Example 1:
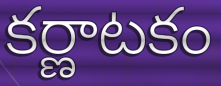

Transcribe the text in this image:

కర్ణాటకం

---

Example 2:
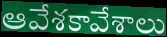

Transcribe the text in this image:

ఆవేశకావేశాలు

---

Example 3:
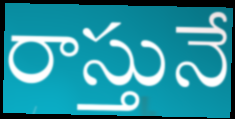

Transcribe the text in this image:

రాస్తునే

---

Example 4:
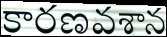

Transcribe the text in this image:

కారణవశాన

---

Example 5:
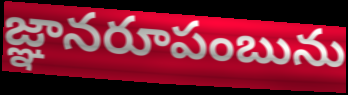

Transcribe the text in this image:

జ్ఞానరూపంబును